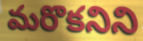
మరొకనిని